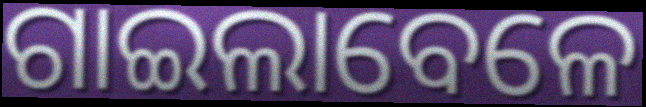
ଗାଇଲାବେଳେ